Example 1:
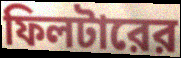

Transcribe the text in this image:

ফিলটারের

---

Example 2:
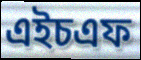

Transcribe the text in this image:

এইচএফ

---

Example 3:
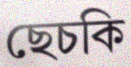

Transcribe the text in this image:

ছেচকি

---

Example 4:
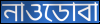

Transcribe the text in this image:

নাওডোবা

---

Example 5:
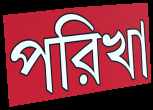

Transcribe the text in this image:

পরিখা